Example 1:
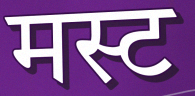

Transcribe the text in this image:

मस्ट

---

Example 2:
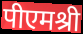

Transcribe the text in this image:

पीएमश्री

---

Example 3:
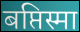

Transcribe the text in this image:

बप्तिस्मा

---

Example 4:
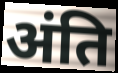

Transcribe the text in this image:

अंति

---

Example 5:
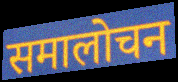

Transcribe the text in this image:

समालोचन